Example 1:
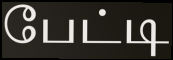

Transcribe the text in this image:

பேட்டி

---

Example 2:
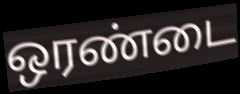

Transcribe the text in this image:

ஒரண்டை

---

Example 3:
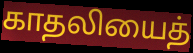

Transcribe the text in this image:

காதலியைத்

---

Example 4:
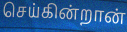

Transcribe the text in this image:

செய்கின்றான்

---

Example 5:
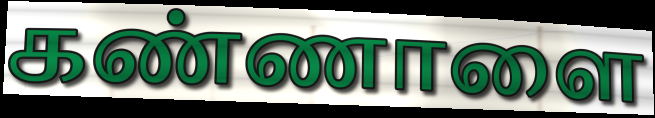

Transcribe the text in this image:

கண்ணாளை